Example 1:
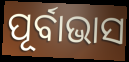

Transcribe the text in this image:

ପୂର୍ବାଭାସ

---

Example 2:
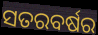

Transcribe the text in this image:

ସତରବର୍ଷର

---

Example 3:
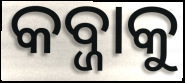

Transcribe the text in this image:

କବ୍ଜାକୁ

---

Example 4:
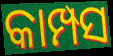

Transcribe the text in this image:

କାମ୍ପସ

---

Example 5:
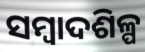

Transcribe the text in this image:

ସମ୍ୱାଦଶିଳ୍ପ